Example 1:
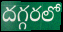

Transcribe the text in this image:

దగ్గరలో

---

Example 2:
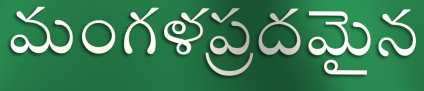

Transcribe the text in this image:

మంగళప్రదమైన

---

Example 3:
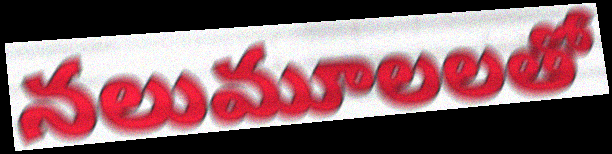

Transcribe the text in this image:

నలుమూలలతో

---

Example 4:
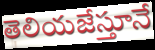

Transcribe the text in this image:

తెలియజేస్తూనే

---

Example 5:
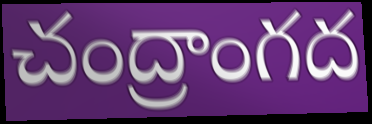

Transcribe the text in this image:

చంద్రాంగద